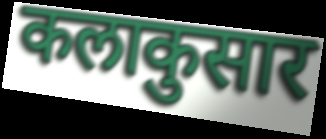
कलाकुसार